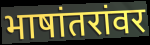
भाषांतरांवर